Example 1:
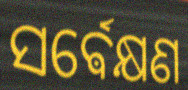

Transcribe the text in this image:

ସର୍ଵେକ୍ଷଣ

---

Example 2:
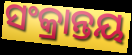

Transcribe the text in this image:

ସଂକ୍ରାନ୍ତୟ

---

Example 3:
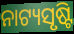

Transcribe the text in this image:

ନାଟ୍ୟସୃଷ୍ଟି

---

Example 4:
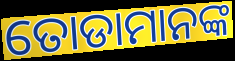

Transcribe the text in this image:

ତୋଡାମାନଙ୍କ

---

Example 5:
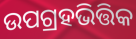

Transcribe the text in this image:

ଉପଗ୍ରହଭିତ୍ତିକ